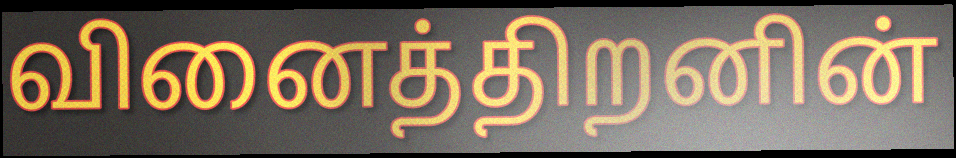
வினைத்திறனின்